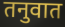
तनुवात